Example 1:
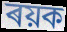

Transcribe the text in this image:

ৰয়ক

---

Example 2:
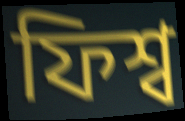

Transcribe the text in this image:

ফিশ্ব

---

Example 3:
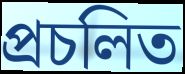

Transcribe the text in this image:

প্ৰচলিত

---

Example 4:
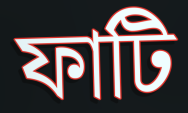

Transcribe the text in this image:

ফাটি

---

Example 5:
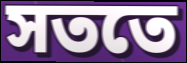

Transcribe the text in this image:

সততে